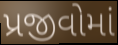
પ્રજીવોમાં